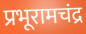
प्रभूरामचंद्र